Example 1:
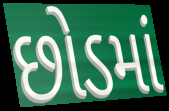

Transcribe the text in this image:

છોડમાં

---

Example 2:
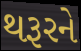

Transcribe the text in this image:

થરૂરને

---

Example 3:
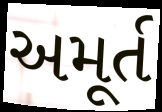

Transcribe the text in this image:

અમૂર્ત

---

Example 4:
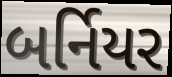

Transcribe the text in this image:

બર્નિયર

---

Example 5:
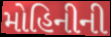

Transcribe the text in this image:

મોહિનીની